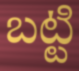
బట్టి